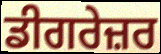
ਡੀਗਰੇਜ਼ਰ